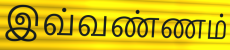
இவ்வண்ணம்